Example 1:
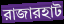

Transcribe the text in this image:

রাজারহাট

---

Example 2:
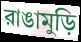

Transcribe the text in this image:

রাঙামুড়ি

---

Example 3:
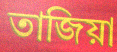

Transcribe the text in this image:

তাজিয়া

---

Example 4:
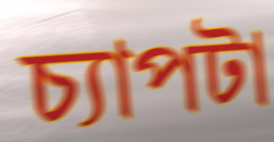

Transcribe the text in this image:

চ্যাপটা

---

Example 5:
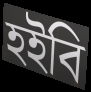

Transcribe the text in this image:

হইবি